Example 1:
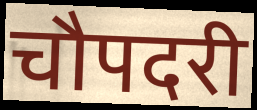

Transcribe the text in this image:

चौपदरी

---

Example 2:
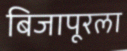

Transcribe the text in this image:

बिजापूरला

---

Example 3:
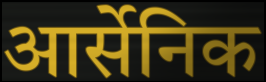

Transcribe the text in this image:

आर्सेनिक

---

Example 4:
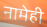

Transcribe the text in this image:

नामेही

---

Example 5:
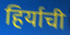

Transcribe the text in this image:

हिर्याची